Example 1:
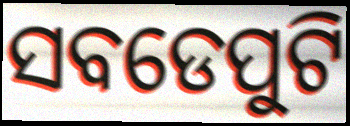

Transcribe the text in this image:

ସବଡେପୁଟି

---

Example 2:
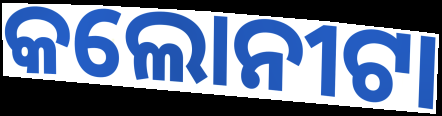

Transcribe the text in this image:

କଲୋନୀଟା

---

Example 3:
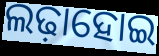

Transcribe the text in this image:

ଲଢ଼ାହୋଇ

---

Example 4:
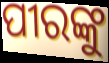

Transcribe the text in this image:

ପୀରଙ୍କୁ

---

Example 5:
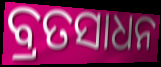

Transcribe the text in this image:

ବ୍ରତସାଧନ